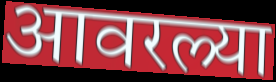
आवरल्या